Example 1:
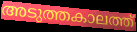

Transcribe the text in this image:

അടുത്തകാലത്ത്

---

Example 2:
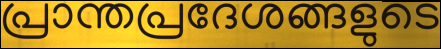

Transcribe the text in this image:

പ്രാന്തപ്രദേശങ്ങളുടെ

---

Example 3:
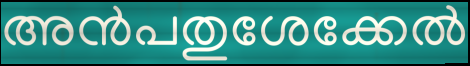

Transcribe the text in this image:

അൻപതുശേക്കേൽ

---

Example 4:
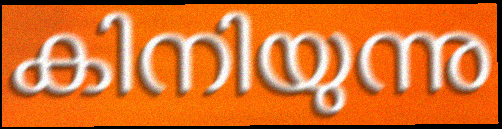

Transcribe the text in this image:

കിനിയുന്നു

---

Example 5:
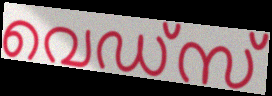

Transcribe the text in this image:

വെഡ്സ്